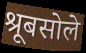
श्रूबसोले